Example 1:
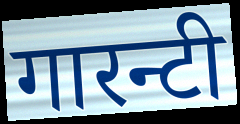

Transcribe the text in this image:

गारन्टी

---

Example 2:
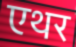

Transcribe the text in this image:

एथर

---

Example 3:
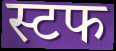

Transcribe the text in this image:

स्टफ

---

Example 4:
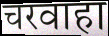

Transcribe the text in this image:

चरवाहा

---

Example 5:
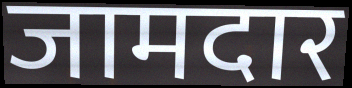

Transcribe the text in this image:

जामदार